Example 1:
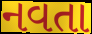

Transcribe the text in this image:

નવતા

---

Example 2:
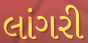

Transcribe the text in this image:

લાંગરી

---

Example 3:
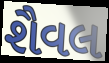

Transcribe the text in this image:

શૈવલ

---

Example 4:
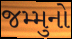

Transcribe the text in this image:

જમ્મુનો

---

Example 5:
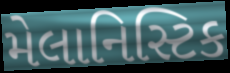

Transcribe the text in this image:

મેલાનિસ્ટિક